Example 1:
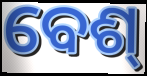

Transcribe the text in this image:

ବେଶ୍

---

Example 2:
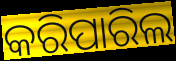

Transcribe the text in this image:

କରିପାରିଲ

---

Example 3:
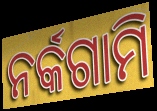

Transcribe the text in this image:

ନର୍କଗାମି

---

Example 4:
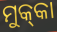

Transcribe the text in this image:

ମୁକ୍‌କା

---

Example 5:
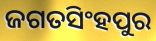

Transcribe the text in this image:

ଜଗତସିଂହପୁର